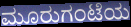
ಮೂರುಗಂಟೆಯ